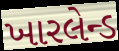
ખારલેન્ડ